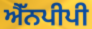
ਐੱਨਪੀਪੀ